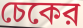
চেকের